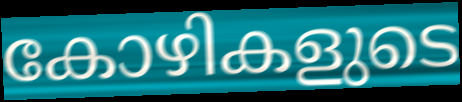
കോഴികളുടെ